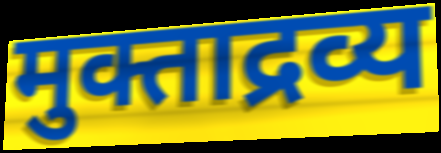
मुक्ताद्रव्य